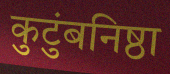
कुटुंबनिष्ठा